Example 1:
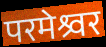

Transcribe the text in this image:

परमेश्र्वर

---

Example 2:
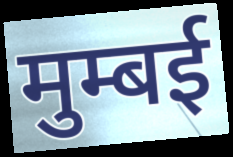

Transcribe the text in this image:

मुम्बई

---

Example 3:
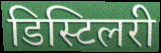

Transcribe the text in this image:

डिस्टिलरी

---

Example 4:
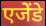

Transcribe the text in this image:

एजेंडे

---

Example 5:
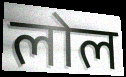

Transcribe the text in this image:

लोल